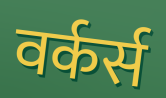
वर्कर्स